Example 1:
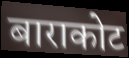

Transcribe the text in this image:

बाराकोट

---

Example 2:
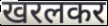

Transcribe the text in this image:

खरलकर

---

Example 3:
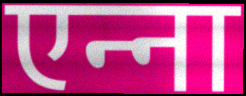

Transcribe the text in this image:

एन्ना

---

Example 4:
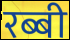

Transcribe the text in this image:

रब्बी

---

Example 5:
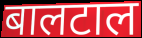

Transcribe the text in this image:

बालटाल